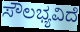
ಸೌಲಭ್ಯವಿದೆ